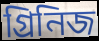
গ্রিনিজ